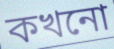
কখনো